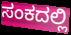
ಸಂಕದಲ್ಲಿ